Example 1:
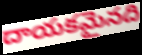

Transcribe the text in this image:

దాయకమైనది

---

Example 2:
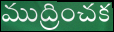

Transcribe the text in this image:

ముద్రించక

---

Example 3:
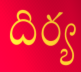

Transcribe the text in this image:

దిర్య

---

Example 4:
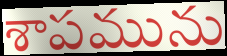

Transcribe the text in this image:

శాపమును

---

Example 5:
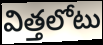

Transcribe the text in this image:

విత్తలోటు